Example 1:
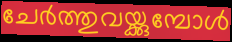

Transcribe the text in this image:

ചേർത്തുവയ്ക്കുമ്പോൾ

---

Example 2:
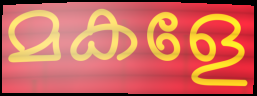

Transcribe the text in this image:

മകളേ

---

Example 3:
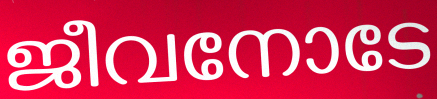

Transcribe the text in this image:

ജീവനോടേ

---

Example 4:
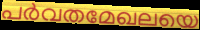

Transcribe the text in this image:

പർവതമേഖലയെ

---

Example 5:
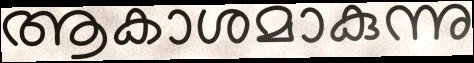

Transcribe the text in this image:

ആകാശമാകുന്നു